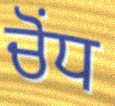
ਚੋਂਧ